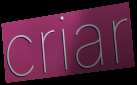
criar